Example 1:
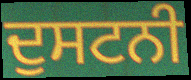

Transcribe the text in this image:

ਦੁਸਟਨੀ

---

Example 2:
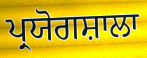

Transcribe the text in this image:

ਪ੍ਰਯੋਗਸ਼ਾਲਾ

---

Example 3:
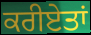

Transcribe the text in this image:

ਕਰੀਏਤਾਂ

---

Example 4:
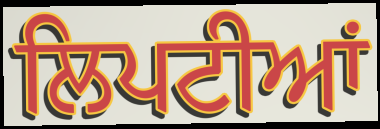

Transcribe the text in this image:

ਲਿਪਟੀਆਂ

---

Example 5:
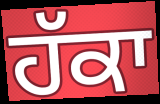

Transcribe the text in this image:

ਹੱਕਾ